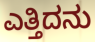
ಎತ್ತಿದನು